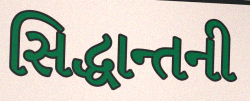
સિદ્ધાન્તની